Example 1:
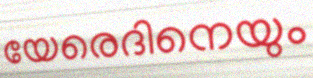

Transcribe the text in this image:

യേരെദിനെയും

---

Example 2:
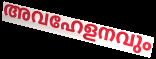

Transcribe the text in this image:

അവഹേളനവും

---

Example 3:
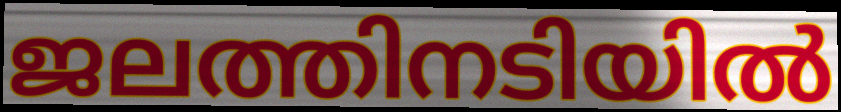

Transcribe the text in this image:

ജലത്തിനടിയിൽ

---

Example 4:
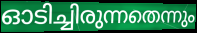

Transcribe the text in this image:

ഓടിച്ചിരുന്നതെന്നും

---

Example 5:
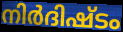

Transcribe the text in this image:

നിർദിഷ്ടം